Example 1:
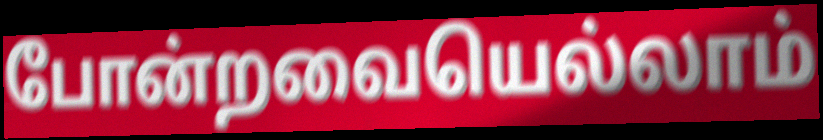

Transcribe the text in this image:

போன்றவையெல்லாம்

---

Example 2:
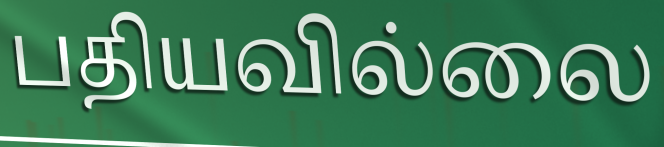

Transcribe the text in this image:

பதியவில்லை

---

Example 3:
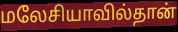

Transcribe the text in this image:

மலேசியாவில்தான்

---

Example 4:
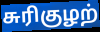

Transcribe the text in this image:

சுரிகுழற்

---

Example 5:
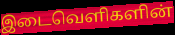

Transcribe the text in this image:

இடைவெளிகளின்